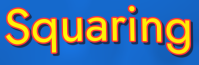
Squaring